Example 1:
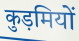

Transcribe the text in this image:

कुड़मियों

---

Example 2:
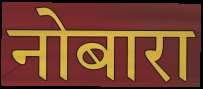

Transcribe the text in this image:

नोबारा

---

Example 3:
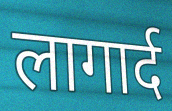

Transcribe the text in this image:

लागार्द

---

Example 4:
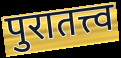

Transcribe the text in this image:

पुरातत्त्व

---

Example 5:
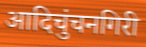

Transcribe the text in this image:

आदिचुंचनगिरी